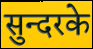
सुन्दरके